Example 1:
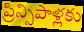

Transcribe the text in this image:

ప్రిన్సిపాళ్లకు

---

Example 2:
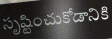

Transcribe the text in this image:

సృష్టించుకోడానికి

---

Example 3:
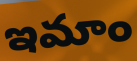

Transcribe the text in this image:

ఇమాం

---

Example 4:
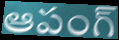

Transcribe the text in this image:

ఆపంగ్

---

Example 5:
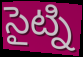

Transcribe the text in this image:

సైట్ని